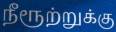
நீரூற்றுக்கு